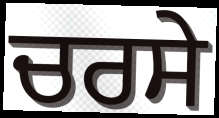
ਚਰਸੇ